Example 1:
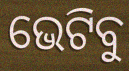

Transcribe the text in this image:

ଭେଟିବୁ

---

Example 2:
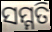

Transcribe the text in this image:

ସମ୍ମତି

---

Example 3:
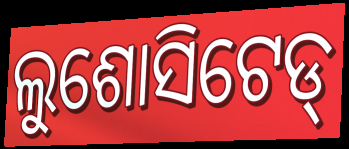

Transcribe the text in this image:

ଲୁଶୋସିଟେଡ୍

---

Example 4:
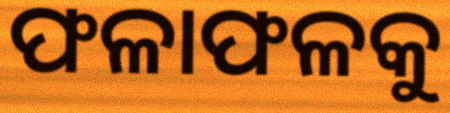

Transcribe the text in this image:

ଫଳାଫଳକୁ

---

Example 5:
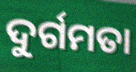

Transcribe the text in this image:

ଦୁର୍ଗମତା